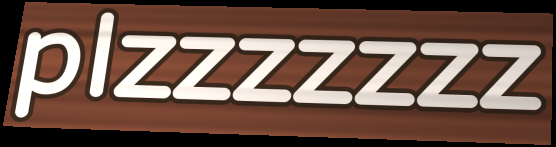
plzzzzzzz